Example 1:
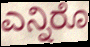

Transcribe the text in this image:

ಎನ್ನಿರೊ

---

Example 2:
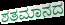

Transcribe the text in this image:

ಶತಮಾನದ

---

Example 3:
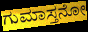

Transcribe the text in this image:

ಗುಮಾಸ್ತನೋ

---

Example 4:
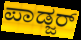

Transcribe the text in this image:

ಪಾಡ್ಜರ್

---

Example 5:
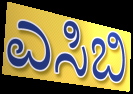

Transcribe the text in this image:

ಎಸಿಬಿ